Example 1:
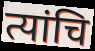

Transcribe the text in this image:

त्यांचि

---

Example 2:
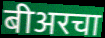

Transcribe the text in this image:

बीअरचा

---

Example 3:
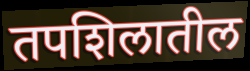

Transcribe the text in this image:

तपशिलातील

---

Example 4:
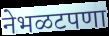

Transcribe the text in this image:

नेभळटपणा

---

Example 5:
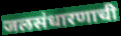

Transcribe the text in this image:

जलसंधारणाची